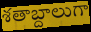
శతాబ్దాలుగా